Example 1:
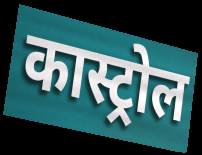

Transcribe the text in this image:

कास्ट्रोल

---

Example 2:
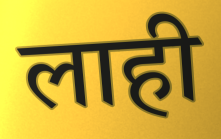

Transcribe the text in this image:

लाही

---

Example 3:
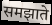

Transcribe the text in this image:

समझाते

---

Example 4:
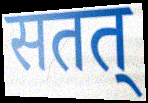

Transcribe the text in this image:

सतत्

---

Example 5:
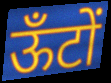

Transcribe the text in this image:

ऊँटों